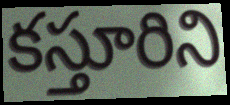
కస్తూరిని